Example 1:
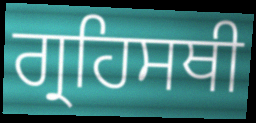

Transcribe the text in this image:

ਗ੍ਰਹਿਸਥੀ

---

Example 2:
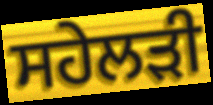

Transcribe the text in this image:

ਸਹੇਲੜੀ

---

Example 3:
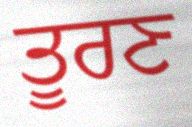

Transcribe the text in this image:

ਤੂਰਣ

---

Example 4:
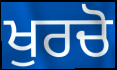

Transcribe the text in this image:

ਖੁਰਚੋ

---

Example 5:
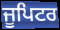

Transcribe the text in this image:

ਜੂਪਿਟਰ